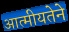
आत्मीयतेने